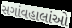
સગાંવહાલાંઓ